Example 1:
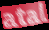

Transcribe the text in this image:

atal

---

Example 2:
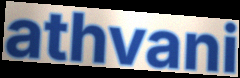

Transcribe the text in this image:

athvani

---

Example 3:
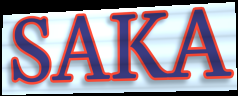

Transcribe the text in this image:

SAKA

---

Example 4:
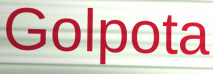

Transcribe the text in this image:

Golpota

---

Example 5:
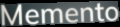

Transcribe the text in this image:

Memento